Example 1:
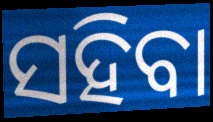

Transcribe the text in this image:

ସହିବା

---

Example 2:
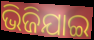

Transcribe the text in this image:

ଭିଜିଯାଇ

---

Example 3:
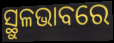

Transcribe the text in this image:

ସ୍ଥୁଳଭାବରେ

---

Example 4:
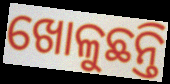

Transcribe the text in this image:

ଖୋଳୁଛନ୍ତି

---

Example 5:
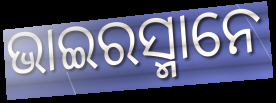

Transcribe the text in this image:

ଭାଇରସ୍ମାନେ